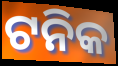
ଟନିକ